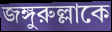
জঙ্গুরুল্লাকে